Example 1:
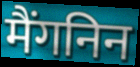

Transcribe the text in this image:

मैंगनिन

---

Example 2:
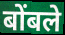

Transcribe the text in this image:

बोंबले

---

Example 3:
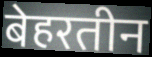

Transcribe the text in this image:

बेहरतीन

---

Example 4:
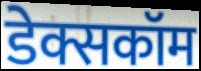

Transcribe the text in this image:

डेक्सकॉम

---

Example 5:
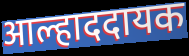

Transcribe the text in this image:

आल्हाददायक